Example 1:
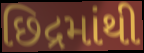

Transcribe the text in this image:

છિદ્રમાંથી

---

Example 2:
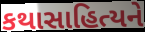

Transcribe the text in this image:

કથાસાહિત્યને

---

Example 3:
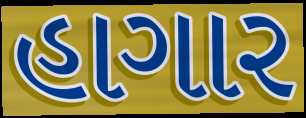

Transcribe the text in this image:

હાગાર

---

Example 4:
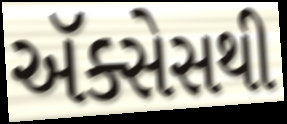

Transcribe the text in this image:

ઍક્સેસથી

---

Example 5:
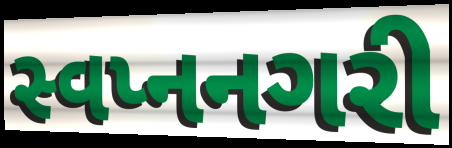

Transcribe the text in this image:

સ્વપ્નનગરી